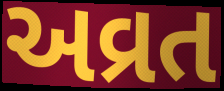
અવ્રત